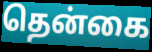
தென்கை